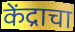
केंद्राचा